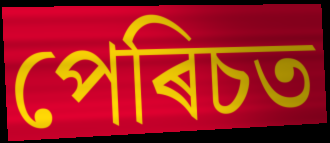
পেৰিচত